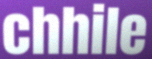
chhile